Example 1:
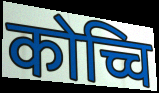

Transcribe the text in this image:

कोच्चि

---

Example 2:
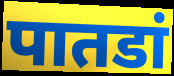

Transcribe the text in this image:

पातडां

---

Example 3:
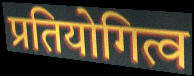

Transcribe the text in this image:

प्रतियोगित्व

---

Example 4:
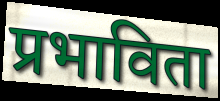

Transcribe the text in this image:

प्रभाविता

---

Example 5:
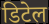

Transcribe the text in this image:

डिटेल